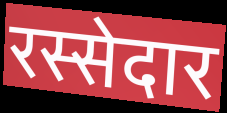
रस्सेदार